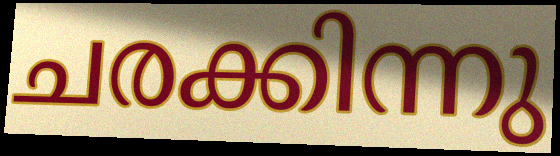
ചരക്കിന്നു